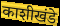
काशीखंडे